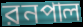
রনপাল